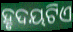
ହୃଦୟଟିଏ